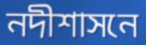
নদীশাসনে